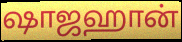
ஷாஜஹான்